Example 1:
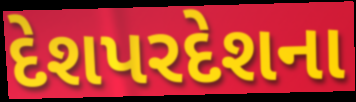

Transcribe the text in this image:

દેશપરદેશના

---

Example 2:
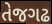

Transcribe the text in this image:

તેજગઢ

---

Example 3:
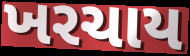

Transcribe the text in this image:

ખરચાય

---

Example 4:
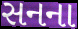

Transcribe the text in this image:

સનના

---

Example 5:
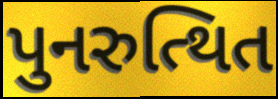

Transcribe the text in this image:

પુનરુત્થિત